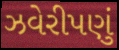
ઝવેરીપણું